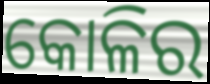
କୋଳିର